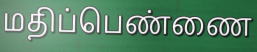
மதிப்பெண்ணை